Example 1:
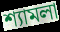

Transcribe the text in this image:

শ্যামলা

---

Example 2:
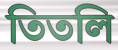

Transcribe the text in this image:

তিতলি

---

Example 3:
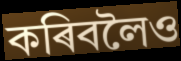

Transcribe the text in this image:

কৰিবলৈও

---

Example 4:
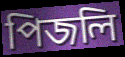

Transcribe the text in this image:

পিজলি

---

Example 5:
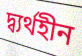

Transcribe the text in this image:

দ্ব্যৰ্থহীন